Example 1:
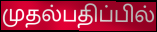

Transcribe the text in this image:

முதல்பதிப்பில்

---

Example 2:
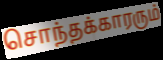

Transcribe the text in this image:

சொந்தக்காரரும்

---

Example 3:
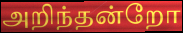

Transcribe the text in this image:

அறிந்தன்றோ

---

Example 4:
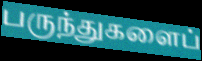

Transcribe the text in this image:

பருந்துகளைப்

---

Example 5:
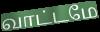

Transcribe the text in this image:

வாட்டமே